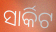
ସାର୍କିଟ